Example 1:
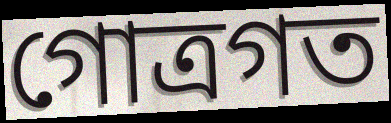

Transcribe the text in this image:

গোত্রগত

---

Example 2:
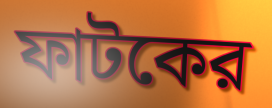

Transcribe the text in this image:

ফাটকের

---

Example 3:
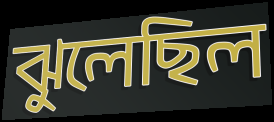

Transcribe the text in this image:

ঝুলেছিল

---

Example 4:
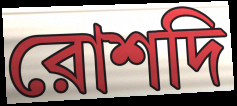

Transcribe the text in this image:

রোশদি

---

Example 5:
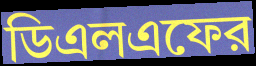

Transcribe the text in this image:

ডিএলএফের